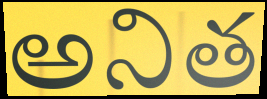
అనిత